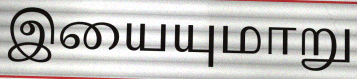
இயையுமாறு